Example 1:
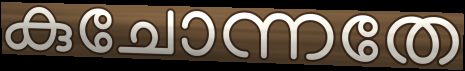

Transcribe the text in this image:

കുചോന്നതേ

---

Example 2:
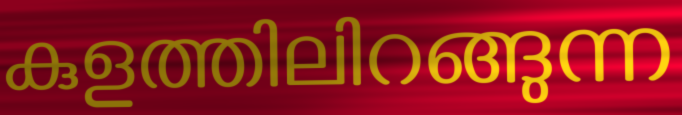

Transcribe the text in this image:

കുളത്തിലിറങ്ങുന്ന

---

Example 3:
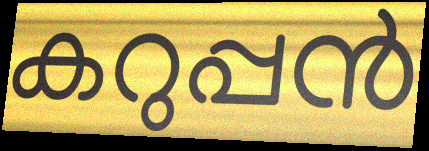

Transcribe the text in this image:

കറുപ്പൻ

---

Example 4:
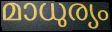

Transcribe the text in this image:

മാധുര്യം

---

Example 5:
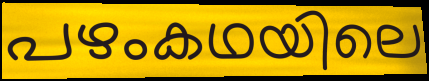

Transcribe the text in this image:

പഴംകഥയിലെ